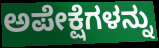
ಅಪೇಕ್ಷೆಗಳನ್ನು